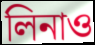
লিনাও